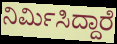
ನಿರ್ಮಿಸಿದ್ದಾರೆ